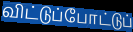
விட்டுப்போட்டுப்